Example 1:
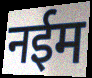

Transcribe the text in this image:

नईम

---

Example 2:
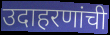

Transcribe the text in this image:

उदाहरणांची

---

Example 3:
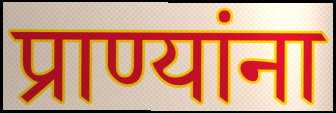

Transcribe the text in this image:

प्राण्यांना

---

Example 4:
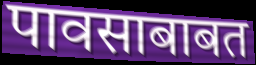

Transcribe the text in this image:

पावसाबाबत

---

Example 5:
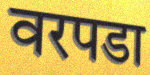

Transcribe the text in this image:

वरपडा